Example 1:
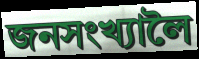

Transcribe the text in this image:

জনসংখ্যালৈ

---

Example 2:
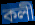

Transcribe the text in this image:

কলী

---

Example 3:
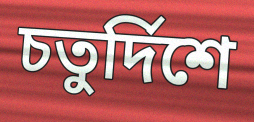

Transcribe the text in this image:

চতুৰ্দিশে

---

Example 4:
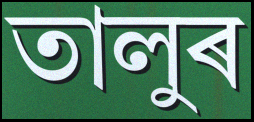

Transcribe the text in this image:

তালুৰ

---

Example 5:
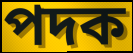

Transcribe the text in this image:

পদক